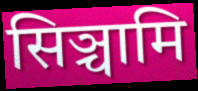
सिञ्चामि